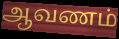
ஆவணம்